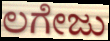
ಲಗೇಜು